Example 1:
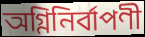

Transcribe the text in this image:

অগ্নিনির্বাপণী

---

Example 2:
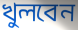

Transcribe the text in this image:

খুলবেন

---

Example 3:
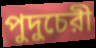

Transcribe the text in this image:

পুদুচেরী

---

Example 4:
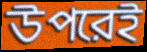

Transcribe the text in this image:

উপরেই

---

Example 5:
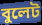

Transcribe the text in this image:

বুলেট